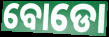
ବୋଡୋ